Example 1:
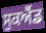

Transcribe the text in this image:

ਸੁਕਐਂਡ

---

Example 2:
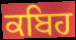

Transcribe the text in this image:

ਕਬਿਹ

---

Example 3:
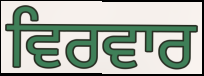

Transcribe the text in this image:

ਵਿਰਵਾਰ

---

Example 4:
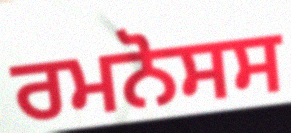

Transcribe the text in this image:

ਰਮਨੋਸਸ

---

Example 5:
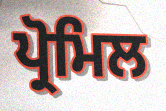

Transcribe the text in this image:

ਪ੍ਰੋਮਿਲ